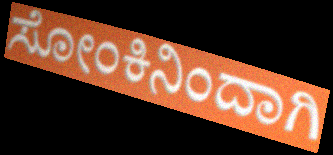
ಸೋಂಕಿನಿಂದಾಗಿ